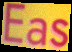
Eas